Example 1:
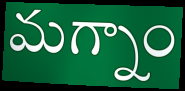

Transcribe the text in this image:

మగ్నాం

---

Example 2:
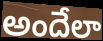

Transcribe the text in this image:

అందేలా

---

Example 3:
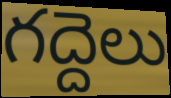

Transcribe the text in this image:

గద్దెలు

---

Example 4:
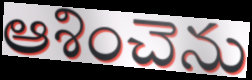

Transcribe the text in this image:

ఆశించెను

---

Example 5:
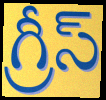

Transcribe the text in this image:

గ్రీస్